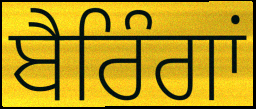
ਬੈਰਿੰਗਾਂ